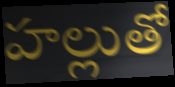
హల్లుతో